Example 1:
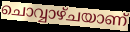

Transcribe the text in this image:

ചൊവ്വാഴ്ചയാണ്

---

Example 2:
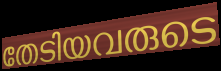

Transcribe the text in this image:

തേടിയവരുടെ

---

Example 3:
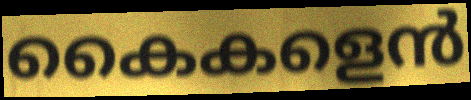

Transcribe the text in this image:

കൈകളെൻ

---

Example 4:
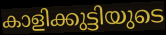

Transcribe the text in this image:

കാളിക്കുട്ടിയുടെ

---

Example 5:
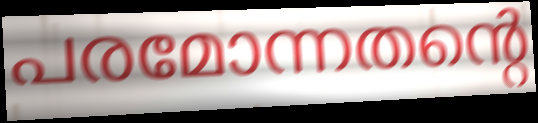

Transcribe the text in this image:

പരമോന്നതന്റെ